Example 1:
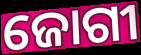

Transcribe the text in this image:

ଜୋଗୀ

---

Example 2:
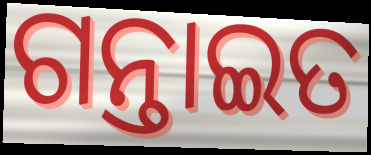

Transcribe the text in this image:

ଗନ୍ତାଇତ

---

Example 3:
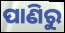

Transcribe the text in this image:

ପାଣିରୁ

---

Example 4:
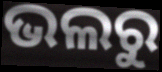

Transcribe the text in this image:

ଭଲରୁ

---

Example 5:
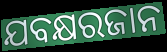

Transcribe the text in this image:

ଯବକ୍ଷରଜାନ